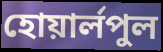
হোয়ার্লপুল